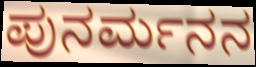
ಪುನರ್ಮನನ